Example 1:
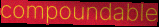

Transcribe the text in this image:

compoundable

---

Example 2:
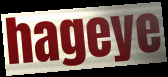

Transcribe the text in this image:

hageye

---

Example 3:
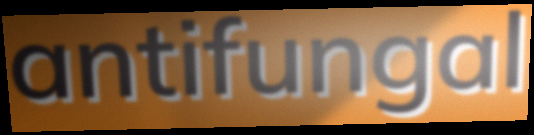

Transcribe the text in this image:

antifungal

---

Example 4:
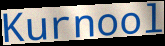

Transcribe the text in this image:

Kurnool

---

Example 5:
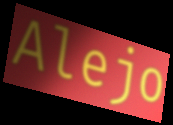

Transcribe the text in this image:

Alejo